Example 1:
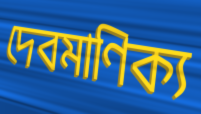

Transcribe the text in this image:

দেবমাণিক্য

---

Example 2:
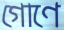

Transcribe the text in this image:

গোণে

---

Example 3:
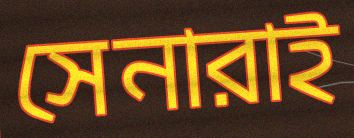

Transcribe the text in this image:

সেনারাই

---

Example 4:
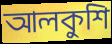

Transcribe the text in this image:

আলকুশি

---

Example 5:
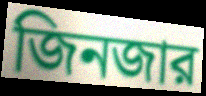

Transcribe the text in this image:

জিনজার